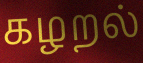
கழறல்